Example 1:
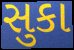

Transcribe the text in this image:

સુકા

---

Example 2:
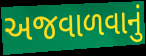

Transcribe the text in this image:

અજવાળવાનું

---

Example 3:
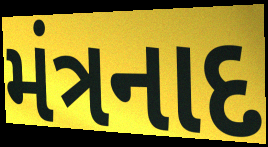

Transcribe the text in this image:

મંત્રનાદ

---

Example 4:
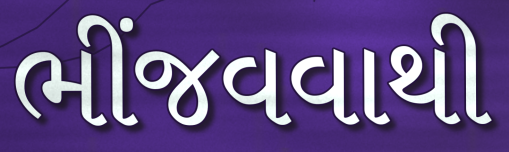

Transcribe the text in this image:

ભીંજવવાથી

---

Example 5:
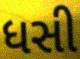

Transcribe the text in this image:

ધસી